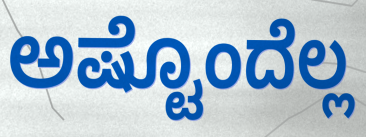
ಅಷ್ಟೊಂದೆಲ್ಲ